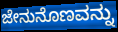
ಜೇನುನೊಣವನ್ನು